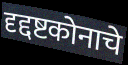
दृद्दष्टकोनाचे